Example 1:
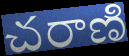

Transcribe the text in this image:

చరాణి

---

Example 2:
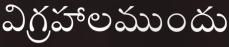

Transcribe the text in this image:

విగ్రహాలముందు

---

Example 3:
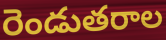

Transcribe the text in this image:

రెండుతరాల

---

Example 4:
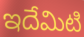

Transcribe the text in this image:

ఇదేమిటి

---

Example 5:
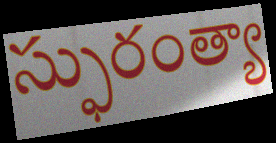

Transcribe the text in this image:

స్ఫురంత్యా